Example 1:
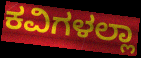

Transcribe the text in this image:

ಕವಿಗಳಲ್ಲಾ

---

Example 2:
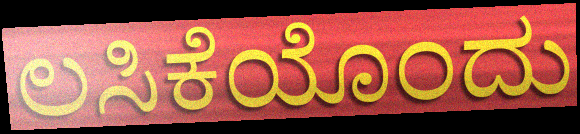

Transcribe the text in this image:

ಲಸಿಕೆಯೊಂದು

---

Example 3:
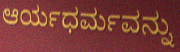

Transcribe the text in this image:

ಆರ್ಯಧರ್ಮವನ್ನು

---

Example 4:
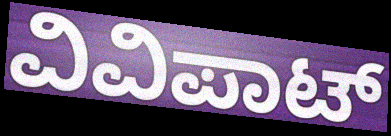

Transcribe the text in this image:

ವಿವಿಪಾಟ್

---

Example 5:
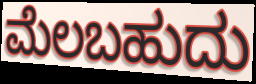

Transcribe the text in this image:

ಮೆಲಬಹುದು